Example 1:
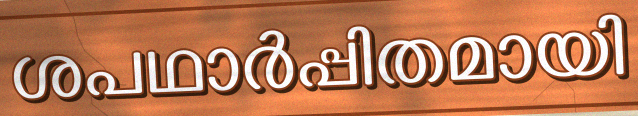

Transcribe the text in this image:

ശപഥാർപ്പിതമായി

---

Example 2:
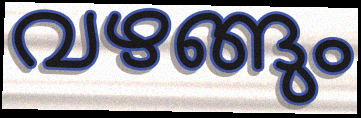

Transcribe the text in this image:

വഴങ്ങും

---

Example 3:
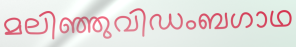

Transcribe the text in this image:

മലിഞ്ഞുവിഡംബഗാഥ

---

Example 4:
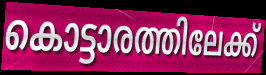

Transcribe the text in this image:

കൊട്ടാരത്തിലേക്ക്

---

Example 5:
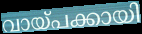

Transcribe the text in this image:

വായ്പക്കായി